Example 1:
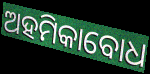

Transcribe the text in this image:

ଅହମିକାବୋଧ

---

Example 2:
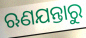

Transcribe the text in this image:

ଋଣଯନ୍ତାରୁ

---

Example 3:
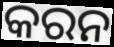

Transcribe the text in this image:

କରନ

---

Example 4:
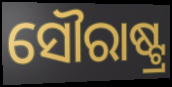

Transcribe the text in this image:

ସୌରାଷ୍ଟ୍ର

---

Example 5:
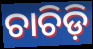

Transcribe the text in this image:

ଚାଚିଡ଼ି